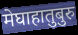
मेघाहातुबुरु